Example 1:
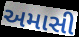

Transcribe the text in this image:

અમાસી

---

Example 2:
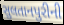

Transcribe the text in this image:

સુલતાનપુરીની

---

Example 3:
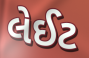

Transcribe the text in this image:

લેઈટ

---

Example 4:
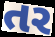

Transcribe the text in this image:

તર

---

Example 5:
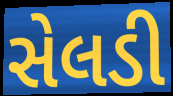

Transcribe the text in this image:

સેલડી